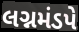
લગ્નમંડપે